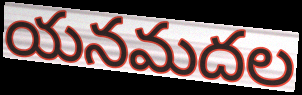
యనమదల